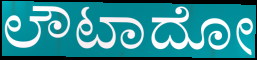
ಲೌಟಾದೋ